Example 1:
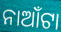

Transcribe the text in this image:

ନାଆଁଟା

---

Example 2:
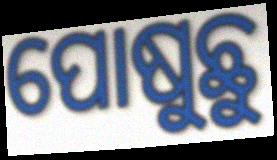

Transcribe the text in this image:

ପୋଷୁଛୁ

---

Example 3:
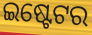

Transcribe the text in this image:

ଇଷ୍ଟେଟର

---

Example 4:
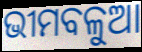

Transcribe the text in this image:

ଭୀମବଳୁଆ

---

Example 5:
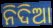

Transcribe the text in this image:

ନିଦିଆ